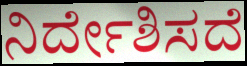
ನಿರ್ದೇಶಿಸದೆ